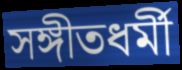
সঙ্গীতধর্মী